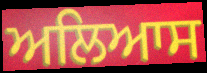
ਅਲਿਆਸ